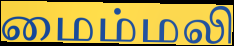
மைம்மலி